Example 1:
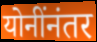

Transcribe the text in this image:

योनींनंतर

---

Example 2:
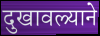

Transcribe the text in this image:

दुखावल्याने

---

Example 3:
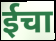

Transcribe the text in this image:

ईचा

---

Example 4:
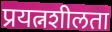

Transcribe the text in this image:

प्रयत्नशीलता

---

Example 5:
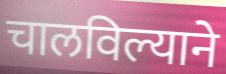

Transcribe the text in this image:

चालविल्याने